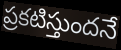
ప్రకటిస్తుందనే